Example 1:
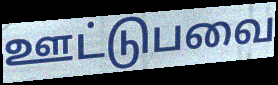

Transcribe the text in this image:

ஊட்டுபவை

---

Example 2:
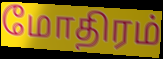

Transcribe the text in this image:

மோதிரம்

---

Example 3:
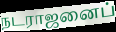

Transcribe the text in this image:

நடராஜனைப்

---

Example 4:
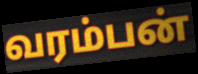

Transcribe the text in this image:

வரம்பன்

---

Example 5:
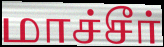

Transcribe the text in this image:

மாச்சீர்